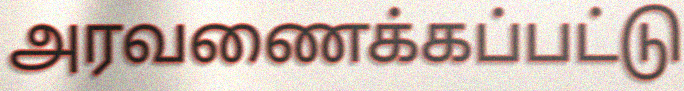
அரவணைக்கப்பட்டு